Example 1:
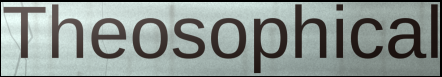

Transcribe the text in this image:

Theosophical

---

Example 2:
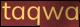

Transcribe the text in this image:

taqwa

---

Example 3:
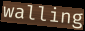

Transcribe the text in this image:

walling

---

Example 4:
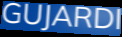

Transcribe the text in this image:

GUJARDI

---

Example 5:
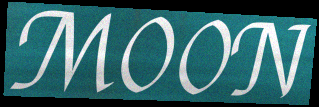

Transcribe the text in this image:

MOON